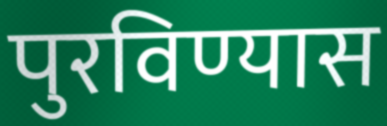
पुरविण्यास